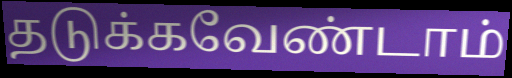
தடுக்கவேண்டாம்